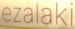
ezalaki